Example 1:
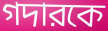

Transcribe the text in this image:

গদারকে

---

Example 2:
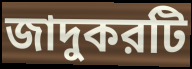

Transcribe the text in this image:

জাদুকরটি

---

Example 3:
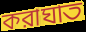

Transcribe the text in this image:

করাঘাত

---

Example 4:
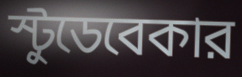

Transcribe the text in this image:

স্টুডেবেকার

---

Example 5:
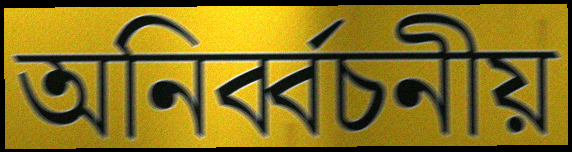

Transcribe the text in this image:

অনির্ব্বচনীয়